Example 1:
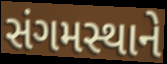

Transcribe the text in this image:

સંગમસ્થાને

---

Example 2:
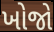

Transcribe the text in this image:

ખોજો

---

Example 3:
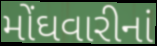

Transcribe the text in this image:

મોંઘવારીનાં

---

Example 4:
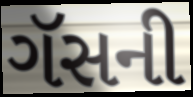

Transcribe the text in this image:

ગૅસની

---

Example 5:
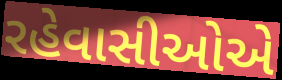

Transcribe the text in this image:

રહેવાસીઓએ